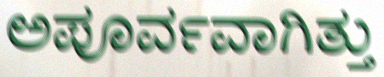
ಅಪೂರ್ವವಾಗಿತ್ತು